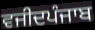
ਵਜੀਦਪੰਜਾਬ